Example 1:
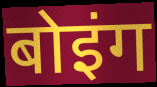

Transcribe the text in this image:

बोइंग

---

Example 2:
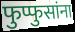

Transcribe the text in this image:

फुप्फुसांना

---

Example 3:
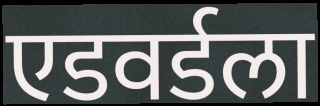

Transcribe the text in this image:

एडवर्डला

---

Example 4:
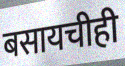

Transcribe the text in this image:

बसायचीही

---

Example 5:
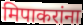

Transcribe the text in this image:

मिपाकरांना